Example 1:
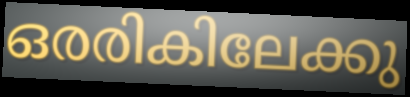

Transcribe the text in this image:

ഒരരികിലേക്കു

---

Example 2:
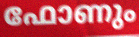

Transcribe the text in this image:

ഫോണും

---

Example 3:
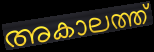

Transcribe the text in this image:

അകാലത്ത്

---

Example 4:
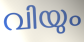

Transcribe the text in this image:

വിയും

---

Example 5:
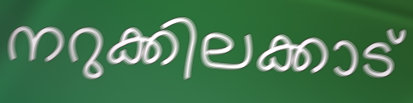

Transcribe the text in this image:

നറുക്കിലക്കാട്